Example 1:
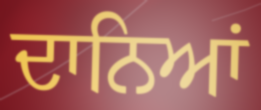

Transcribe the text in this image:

ਦਾਨਿਆਂ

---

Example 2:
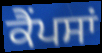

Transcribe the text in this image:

ਕੈਂਪਸਾਂ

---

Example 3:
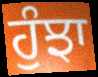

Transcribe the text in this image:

ਹੁੰਝਾ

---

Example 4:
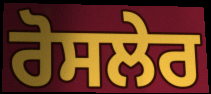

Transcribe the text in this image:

ਰੋਸਲੇਰ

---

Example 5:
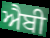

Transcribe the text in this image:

ਐਬੀ